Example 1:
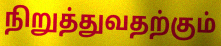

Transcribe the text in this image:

நிறுத்துவதற்கும்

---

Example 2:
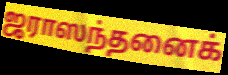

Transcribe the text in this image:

ஜராஸந்தனைக்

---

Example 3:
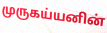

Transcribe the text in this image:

முருகய்யனின்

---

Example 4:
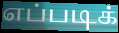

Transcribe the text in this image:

எப்படிக்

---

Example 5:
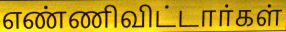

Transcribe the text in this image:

எண்ணிவிட்டார்கள்